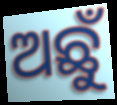
ଅଛୁଁ